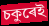
চকুৰেই